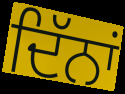
ਦਿੱਨਾਂ